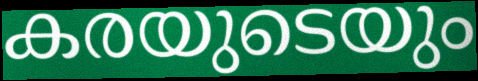
കരയുടെയും